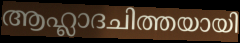
ആഹ്ലാദചിത്തയായി